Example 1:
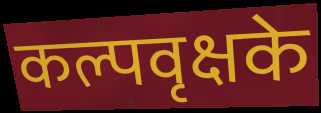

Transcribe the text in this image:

कल्पवृक्षके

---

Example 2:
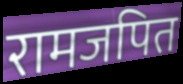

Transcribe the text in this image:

रामजपित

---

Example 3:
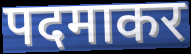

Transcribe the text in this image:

पदमाकर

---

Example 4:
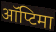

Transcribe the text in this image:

ऑप्टिमा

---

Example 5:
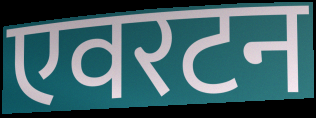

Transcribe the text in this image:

एवरटन